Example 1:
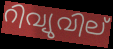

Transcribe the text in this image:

റിവ്യുവില്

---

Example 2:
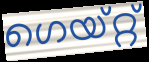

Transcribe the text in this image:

ഗെയ്റ്റ്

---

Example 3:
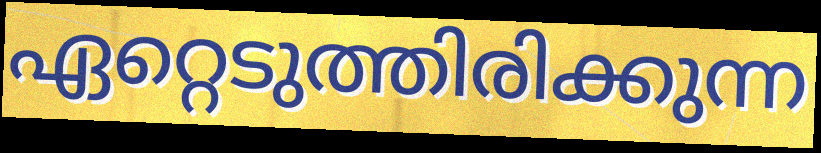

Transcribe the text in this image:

ഏറ്റെടുത്തിരിക്കുന്ന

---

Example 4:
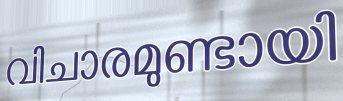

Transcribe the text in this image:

വിചാരമുണ്ടായി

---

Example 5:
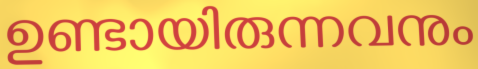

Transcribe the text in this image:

ഉണ്ടായിരുന്നവനും